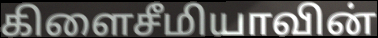
கிளைசீமியாவின்